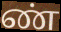
ண்